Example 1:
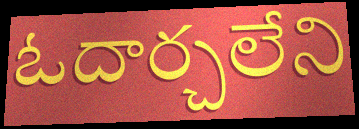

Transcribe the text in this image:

ఓదార్చలేని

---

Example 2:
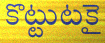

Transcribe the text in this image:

కొట్టుటకై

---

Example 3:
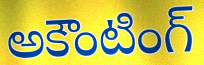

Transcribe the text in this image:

అకౌంటింగ్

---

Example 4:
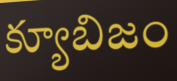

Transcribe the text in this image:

క్యూబిజం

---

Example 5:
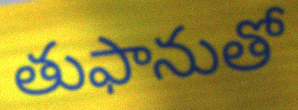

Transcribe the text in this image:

తుఫానుతో